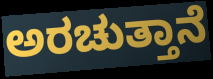
ಅರಚುತ್ತಾನೆ